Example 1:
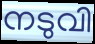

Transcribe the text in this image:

നടുവി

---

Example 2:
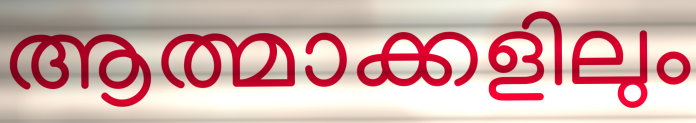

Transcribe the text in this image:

ആത്മാക്കളിലും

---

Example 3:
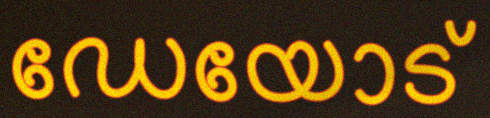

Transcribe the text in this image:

ഡേയോട്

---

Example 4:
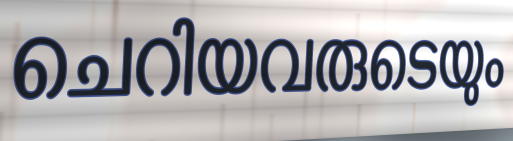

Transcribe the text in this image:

ചെറിയവരുടെയും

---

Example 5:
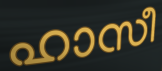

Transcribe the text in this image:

ഹാസീ